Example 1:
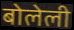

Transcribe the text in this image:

बोलेली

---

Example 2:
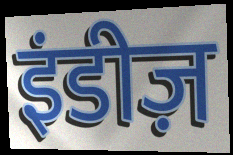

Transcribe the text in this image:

इंडीज़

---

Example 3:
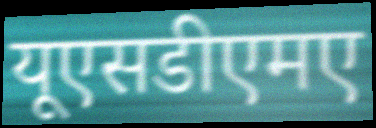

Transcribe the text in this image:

यूएसडीएमए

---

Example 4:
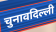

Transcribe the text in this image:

चुनावदिल्ली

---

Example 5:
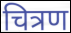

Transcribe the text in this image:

चित्रण